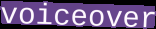
voiceover